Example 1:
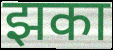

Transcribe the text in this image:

झका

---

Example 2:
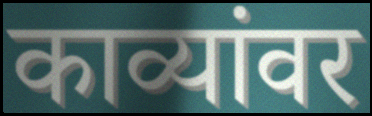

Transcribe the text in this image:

काव्यांवर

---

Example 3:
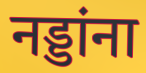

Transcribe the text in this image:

नड्डांना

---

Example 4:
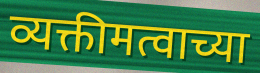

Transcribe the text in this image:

व्यक्तीमत्वाच्या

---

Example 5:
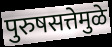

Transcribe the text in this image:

पुरुषसत्तेमुळे